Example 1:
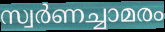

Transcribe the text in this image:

സ്വർണച്ചാമരം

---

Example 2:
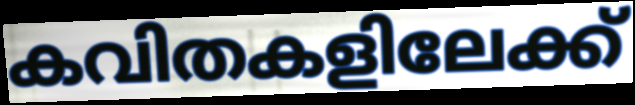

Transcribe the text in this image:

കവിതകളിലേക്ക്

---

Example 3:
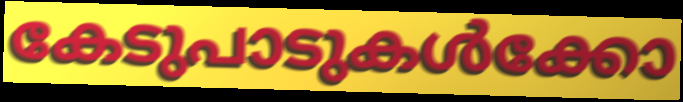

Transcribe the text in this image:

കേടുപാടുകൾക്കോ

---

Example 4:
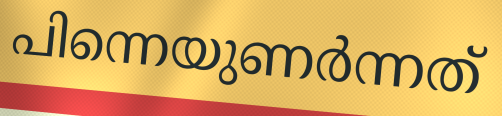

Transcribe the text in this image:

പിന്നെയുണർന്നത്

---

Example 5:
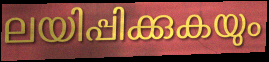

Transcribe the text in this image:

ലയിപ്പിക്കുകയും